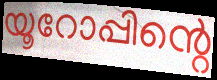
യൂറോപ്പിന്റെ